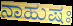
ನಾಹುಷಃ